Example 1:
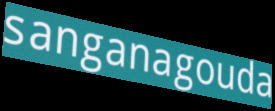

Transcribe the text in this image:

sanganagouda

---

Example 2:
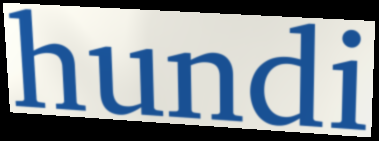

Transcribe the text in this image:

hundi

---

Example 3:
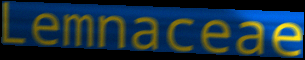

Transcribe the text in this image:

Lemnaceae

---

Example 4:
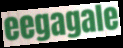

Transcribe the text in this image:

eegagale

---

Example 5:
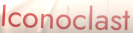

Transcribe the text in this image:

Iconoclast